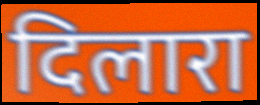
दिलारा